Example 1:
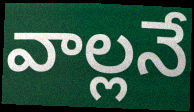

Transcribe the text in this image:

వాల్లనే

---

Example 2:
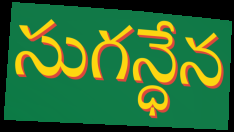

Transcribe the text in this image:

సుగన్ధేన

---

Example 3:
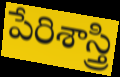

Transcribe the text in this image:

పేరిశాస్త్రి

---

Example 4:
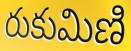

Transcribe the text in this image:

రుకుమిణి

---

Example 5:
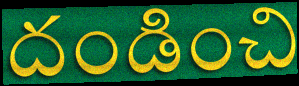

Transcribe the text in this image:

దండించి